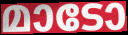
മാടോ